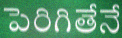
పెరిగితేనే